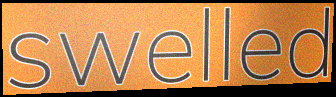
swelled